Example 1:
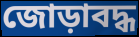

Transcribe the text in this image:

জোড়াবদ্ধ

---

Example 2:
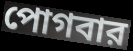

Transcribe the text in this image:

পোগবার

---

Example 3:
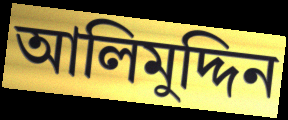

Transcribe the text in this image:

আলিমুদ্দিন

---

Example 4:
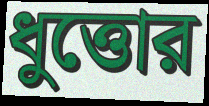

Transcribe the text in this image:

ধুত্তোর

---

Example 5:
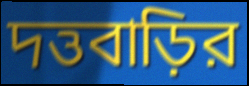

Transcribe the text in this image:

দত্তবাড়ির